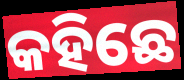
କହିଛେ